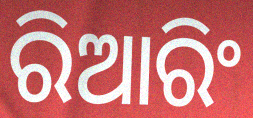
ରିଆରିଂ